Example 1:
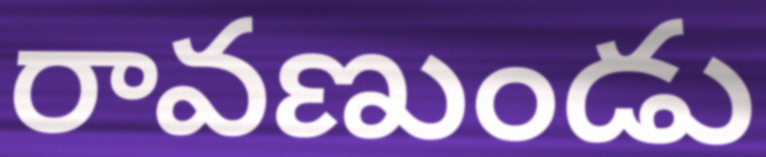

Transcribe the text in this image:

రావణుండు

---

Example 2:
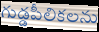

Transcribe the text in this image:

గుడ్డపీలికలను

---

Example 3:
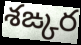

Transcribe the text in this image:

శఙ్కర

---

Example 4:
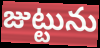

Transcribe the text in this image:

జుట్టును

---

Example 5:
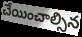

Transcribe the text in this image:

చేయించాల్సిన